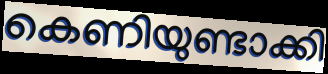
കെണിയുണ്ടാക്കി